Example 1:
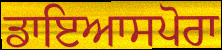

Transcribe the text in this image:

ਡਾਇਆਸਪੋਰਾ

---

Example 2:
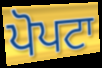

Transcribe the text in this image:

ਪੋਪਟਾ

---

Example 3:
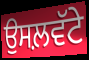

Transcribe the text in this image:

ਉਸਲ਼ਵੱਟੇ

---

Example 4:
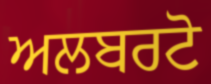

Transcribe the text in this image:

ਅਲਬਰਟੋ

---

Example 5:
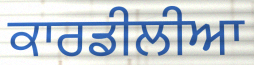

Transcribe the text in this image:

ਕਾਰਡੀਲੀਆ